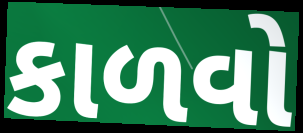
કાળવો